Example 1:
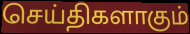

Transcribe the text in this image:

செய்திகளாகும்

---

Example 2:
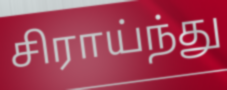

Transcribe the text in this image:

சிராய்ந்து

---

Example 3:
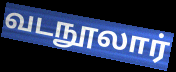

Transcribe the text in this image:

வடநூலார்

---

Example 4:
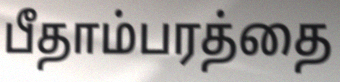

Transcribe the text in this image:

பீதாம்பரத்தை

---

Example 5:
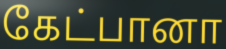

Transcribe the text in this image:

கேட்பானா